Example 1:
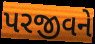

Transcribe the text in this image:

પરજીવને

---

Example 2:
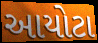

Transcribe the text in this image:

આયોટા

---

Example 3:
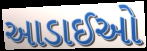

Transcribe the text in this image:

આડાઈઓ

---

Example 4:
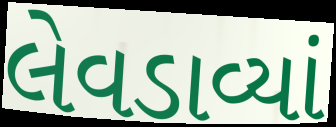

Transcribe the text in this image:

લેવડાવ્યાં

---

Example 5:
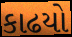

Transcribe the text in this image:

કાઢયો